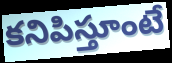
కనిపిస్తూంటే